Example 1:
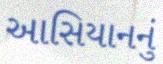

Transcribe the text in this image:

આસિયાનનું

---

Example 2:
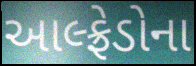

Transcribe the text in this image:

આલ્ફ્રેડોના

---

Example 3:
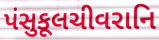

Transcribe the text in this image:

પંસુકૂલચીવરાનિ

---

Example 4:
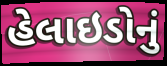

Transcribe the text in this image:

હેલાઇડોનું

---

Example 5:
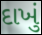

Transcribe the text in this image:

દાખું